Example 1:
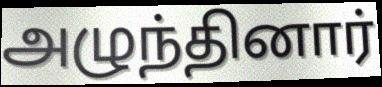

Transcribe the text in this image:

அழுந்தினார்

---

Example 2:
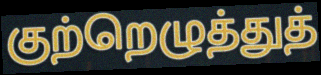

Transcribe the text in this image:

குற்றெழுத்துத்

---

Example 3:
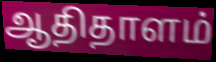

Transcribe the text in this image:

ஆதிதாளம்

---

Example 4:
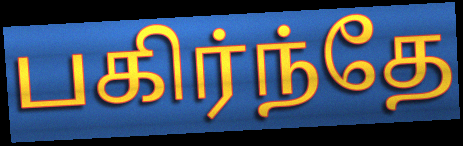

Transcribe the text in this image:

பகிர்ந்தே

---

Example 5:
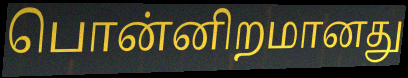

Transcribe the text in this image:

பொன்னிறமானது